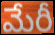
మేరీ